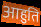
आहुति